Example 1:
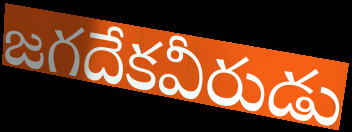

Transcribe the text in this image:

జగదేకవీరుడు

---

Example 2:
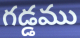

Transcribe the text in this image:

గడ్డము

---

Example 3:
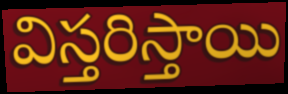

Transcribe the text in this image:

విస్తరిస్తాయి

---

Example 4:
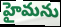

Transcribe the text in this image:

హైమను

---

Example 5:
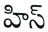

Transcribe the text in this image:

హిస్